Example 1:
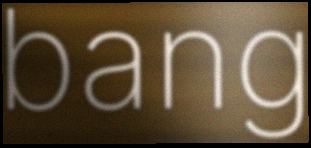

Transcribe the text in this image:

bang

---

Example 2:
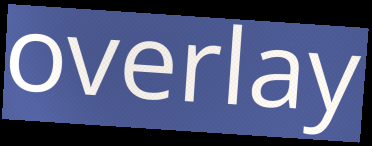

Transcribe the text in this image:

overlay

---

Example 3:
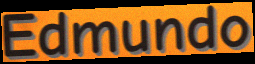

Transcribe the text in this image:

Edmundo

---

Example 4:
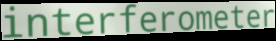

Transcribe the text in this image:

interferometer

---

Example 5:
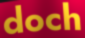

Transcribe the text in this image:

doch